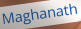
Maghanath